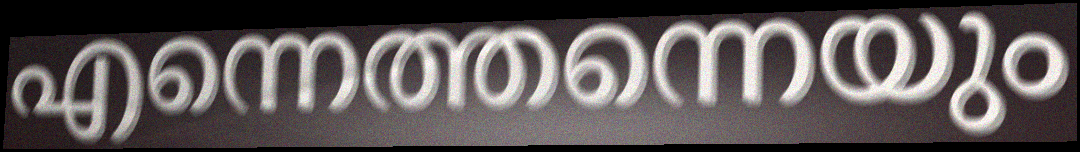
എന്നെത്തന്നെയും